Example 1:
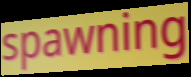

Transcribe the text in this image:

spawning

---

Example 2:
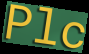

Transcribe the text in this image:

Plc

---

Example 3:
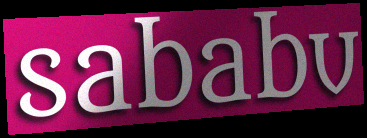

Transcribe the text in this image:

sababu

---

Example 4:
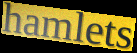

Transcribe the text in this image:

hamlets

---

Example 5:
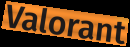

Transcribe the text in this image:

Valorant